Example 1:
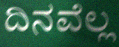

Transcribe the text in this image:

ದಿನವೆಲ್ಲ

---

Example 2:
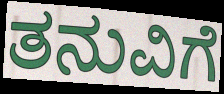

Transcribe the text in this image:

ತನುವಿಗೆ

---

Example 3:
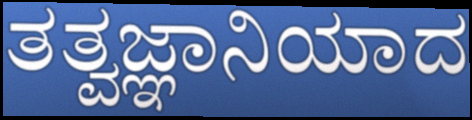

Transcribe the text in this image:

ತತ್ವಜ್ಞಾನಿಯಾದ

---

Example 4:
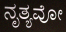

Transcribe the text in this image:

ನೃತ್ಯವೋ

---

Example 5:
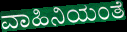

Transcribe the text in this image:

ವಾಹಿನಿಯಂತೆ